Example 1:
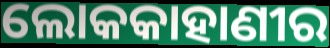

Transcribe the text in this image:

ଲୋକକାହାଣୀର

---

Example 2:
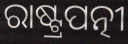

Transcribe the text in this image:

ରାଷ୍ଟ୍ରପତ୍ନୀ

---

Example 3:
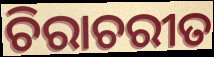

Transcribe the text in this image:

ଚିରାଚରୀତ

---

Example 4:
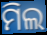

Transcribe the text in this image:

ମିଲ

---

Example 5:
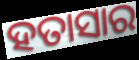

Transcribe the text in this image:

ହତାସାର